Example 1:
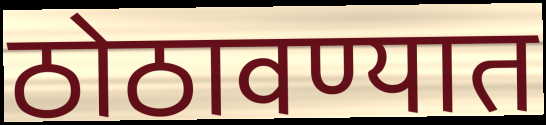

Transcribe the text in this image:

ठोठावण्यात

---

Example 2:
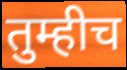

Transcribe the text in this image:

तुम्हीच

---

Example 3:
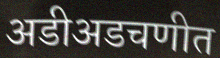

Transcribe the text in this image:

अडीअडचणीत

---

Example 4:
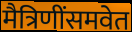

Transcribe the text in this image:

मैत्रिणींसमवेत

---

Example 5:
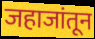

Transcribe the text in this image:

जहाजांतून